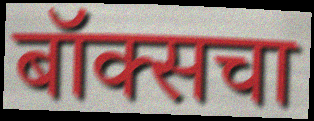
बॉक्सचा